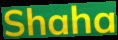
Shaha